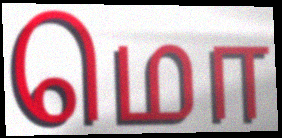
மொ